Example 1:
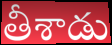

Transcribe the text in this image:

తీశాడు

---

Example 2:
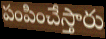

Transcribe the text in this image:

పంపించేస్తారు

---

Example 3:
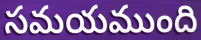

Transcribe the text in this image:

సమయముంది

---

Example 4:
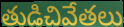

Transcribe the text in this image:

తుడిచివేతలు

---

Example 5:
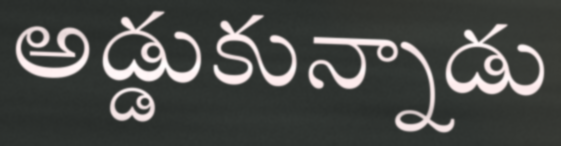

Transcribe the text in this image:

అడ్డుకున్నాడు